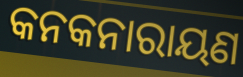
କନକନାରାୟଣ